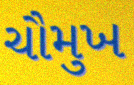
ચૌમુખ